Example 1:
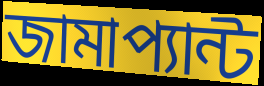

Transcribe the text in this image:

জামাপ্যান্ট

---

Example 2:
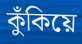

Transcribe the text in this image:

কুঁকিয়ে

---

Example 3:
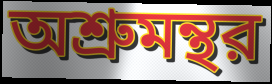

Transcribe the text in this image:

অশ্রুমন্থর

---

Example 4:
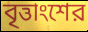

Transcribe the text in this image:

বৃত্তাংশের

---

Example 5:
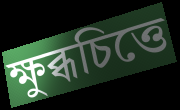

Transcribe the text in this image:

ক্ষুব্ধচিত্তে